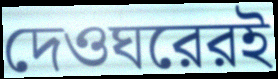
দেওঘরেরই